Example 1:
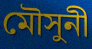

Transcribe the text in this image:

মৌসুনী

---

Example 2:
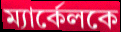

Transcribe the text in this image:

ম্যার্কেলকে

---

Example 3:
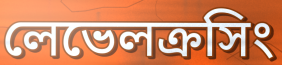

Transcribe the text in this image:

লেভেলক্রসিং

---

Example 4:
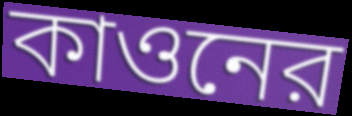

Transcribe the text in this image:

কাওনের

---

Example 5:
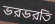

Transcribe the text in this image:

ভরভরতি